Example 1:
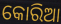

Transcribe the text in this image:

କୋରିଆ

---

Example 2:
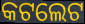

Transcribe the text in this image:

କଟଲେଟ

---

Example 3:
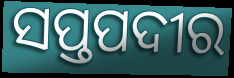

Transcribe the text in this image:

ସପ୍ତପଦୀର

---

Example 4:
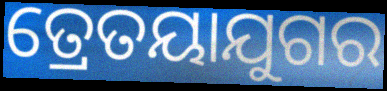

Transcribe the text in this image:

ତ୍ରେତୟାଯୁଗର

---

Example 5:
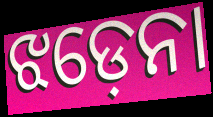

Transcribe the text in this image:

ଝଡ଼େନା